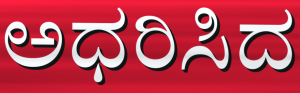
ಅಧರಿಸಿದ